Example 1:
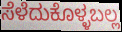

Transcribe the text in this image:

ಸೆಳೆದುಕೊಳ್ಳಬಲ್ಲ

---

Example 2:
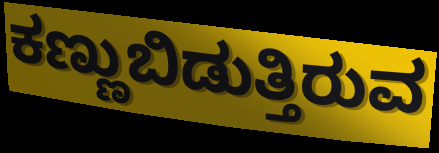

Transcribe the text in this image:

ಕಣ್ಣುಬಿಡುತ್ತಿರುವ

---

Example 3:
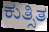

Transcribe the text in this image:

ಕುತ್ಸಿತ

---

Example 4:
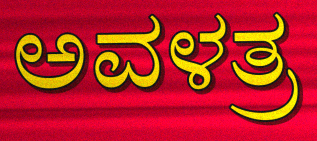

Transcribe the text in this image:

ಅವಳತ್ರ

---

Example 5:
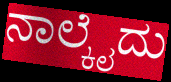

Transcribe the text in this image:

ನಾಲ್ಕೈದು